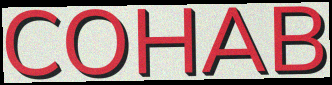
COHAB